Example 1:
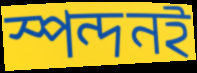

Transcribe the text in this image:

স্পন্দনই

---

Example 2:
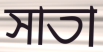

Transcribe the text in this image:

সাতা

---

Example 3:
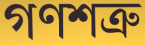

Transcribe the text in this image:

গণশত্রু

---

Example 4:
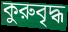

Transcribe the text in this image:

কুরুবৃদ্ধ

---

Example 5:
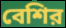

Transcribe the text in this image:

বেশির